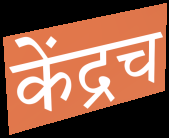
केंद्रच